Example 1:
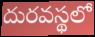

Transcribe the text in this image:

దురవస్థలో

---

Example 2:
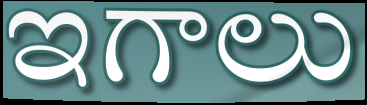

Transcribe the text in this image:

ఇగాలు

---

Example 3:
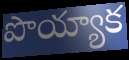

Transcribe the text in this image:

పొయ్యాక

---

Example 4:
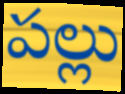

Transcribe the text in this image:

పల్లు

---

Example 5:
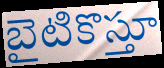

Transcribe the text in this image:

బైటికొస్తూ